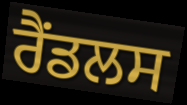
ਰੈਂਡਲਸ